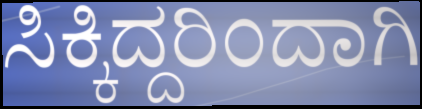
ಸಿಕ್ಕಿದ್ದರಿಂದಾಗಿ